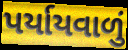
પર્યાયવાળું